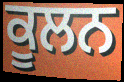
ਕੂਲਨ